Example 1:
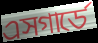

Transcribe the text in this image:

এসগার্ডে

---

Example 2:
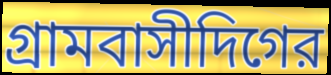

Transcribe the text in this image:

গ্রামবাসীদিগের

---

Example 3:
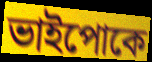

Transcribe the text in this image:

ভাইপোকে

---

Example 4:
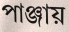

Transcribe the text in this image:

পাঞ্জায়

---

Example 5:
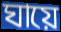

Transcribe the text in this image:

ঘায়ে